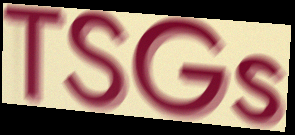
TSGs